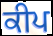
ਕੀਪ